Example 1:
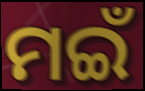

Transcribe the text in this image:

ମଇଁ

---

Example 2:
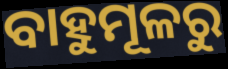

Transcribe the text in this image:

ବାହୁମୂଳରୁ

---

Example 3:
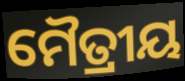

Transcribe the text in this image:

ମୈତ୍ରୀୟ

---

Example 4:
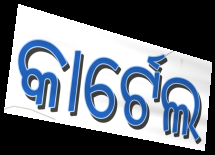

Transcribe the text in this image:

କାର୍ଟେଲ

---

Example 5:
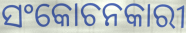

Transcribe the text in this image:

ସଂକୋଚନକାରୀ